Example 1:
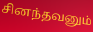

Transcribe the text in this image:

சினந்தவனும்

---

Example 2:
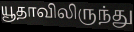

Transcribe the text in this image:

யூதாவிலிருந்து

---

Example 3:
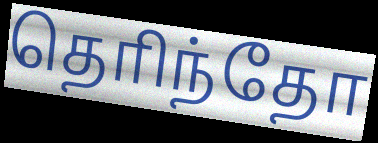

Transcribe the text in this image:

தெரிந்தோ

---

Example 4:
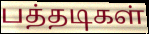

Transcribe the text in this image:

பத்தடிகள்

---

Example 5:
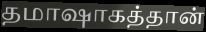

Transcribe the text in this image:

தமாஷாகத்தான்